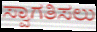
ಸ್ವಾಗತಿಸಲು